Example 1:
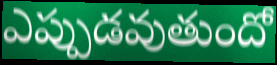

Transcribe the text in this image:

ఎప్పుడవుతుందో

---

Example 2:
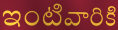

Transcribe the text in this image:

ఇంటివారికి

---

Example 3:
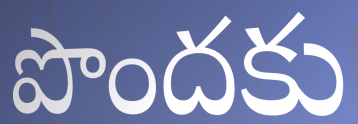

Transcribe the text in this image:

పొందకు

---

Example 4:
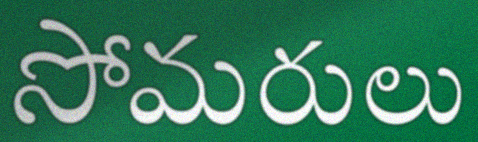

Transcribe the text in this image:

సోమరులు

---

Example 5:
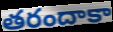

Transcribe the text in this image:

తరందాకా